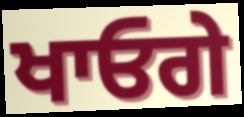
ਖਾਓਗੇ